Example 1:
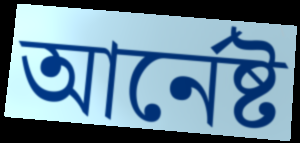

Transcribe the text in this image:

আৰ্নেষ্ট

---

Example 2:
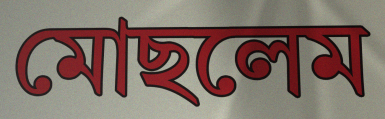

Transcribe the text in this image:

মোছলেম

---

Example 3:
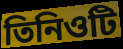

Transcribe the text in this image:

তিনিওটি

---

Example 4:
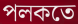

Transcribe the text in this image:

পলকতে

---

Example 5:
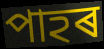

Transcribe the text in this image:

পাহৰ